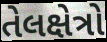
તેલક્ષેત્રો